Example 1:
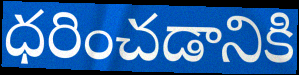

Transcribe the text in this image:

ధరించడానికి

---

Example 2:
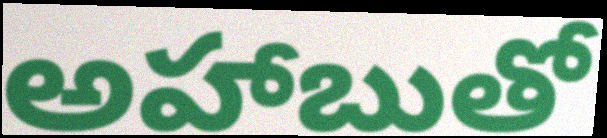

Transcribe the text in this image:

అహాబుతో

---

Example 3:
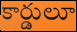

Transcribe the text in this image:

కార్డులూ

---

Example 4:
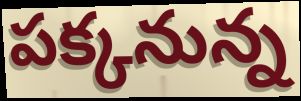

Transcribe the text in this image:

పక్కనున్న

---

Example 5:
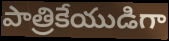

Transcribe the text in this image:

పాత్రికేయుడిగా